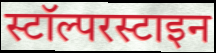
स्टॉल्परस्टाइन